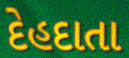
દેહદાતા